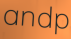
andp